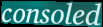
consoled